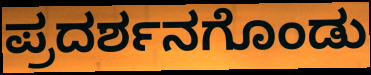
ಪ್ರದರ್ಶನಗೊಂಡು